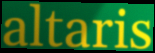
altaris